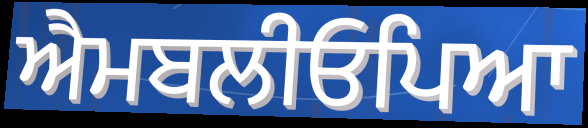
ਐਮਬਲੀਓਪਿਆ